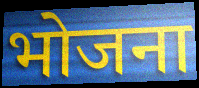
भोजना